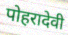
पोहरादेवी